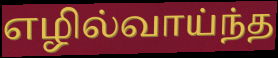
எழில்வாய்ந்த